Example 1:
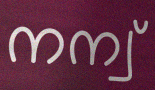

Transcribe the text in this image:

നന്വ്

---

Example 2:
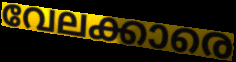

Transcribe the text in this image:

വേലക്കാരെ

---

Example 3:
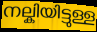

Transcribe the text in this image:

നല്കിയിട്ടുള്ള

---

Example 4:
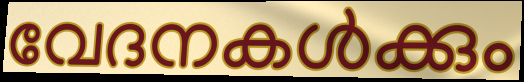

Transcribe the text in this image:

വേദനകൾക്കും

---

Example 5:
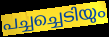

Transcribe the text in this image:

പച്ചച്ചെടിയും